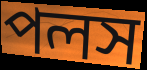
পলস